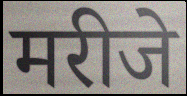
मरीजे